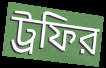
ট্রফির